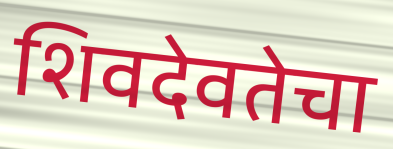
शिवदेवतेचा